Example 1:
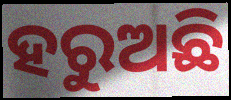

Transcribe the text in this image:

ହରୁଅଛି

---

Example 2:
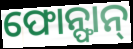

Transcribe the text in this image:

ଫୋନ୍ଫାନ୍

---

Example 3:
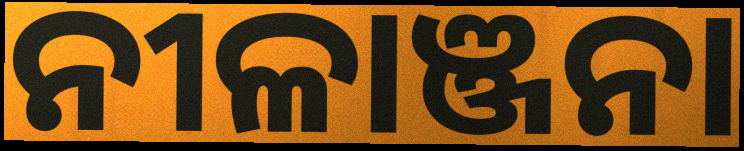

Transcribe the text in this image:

ନୀଳାଞ୍ଜନା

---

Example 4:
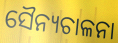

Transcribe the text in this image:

ସୈନ୍ୟଚାଳନା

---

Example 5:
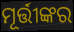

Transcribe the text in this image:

ମୂର୍ତ୍ତୀଙ୍କର